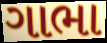
ગાભા